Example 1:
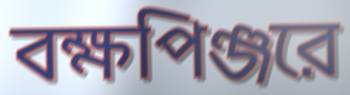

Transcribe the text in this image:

বক্ষপিঞ্জরে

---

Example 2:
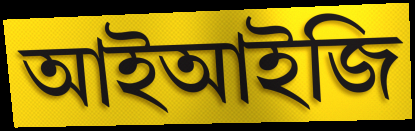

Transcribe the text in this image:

আইআইজি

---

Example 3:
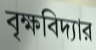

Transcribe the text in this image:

বৃক্ষবিদ্যার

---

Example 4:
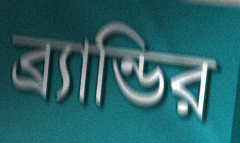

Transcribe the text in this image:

ব্র্যান্ডির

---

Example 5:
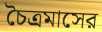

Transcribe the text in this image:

চৈত্রমাসের